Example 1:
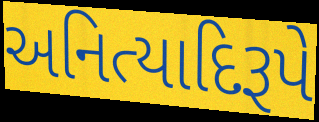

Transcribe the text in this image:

અનિત્યાદિરૂપે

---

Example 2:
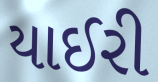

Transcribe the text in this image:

યાઈરી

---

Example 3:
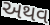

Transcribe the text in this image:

અથવ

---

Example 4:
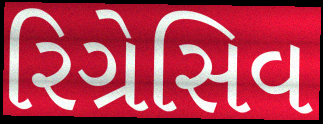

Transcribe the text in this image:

રિગ્રેસિવ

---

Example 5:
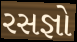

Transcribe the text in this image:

રસજ્ઞો